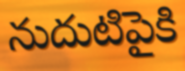
నుదుటిపైకి